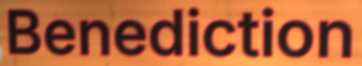
Benediction